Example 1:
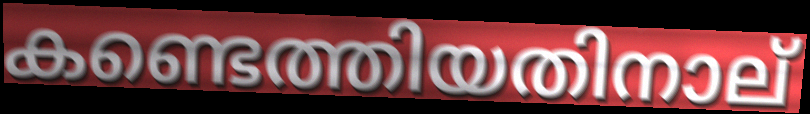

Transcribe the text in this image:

കണ്ടെത്തിയതിനാല്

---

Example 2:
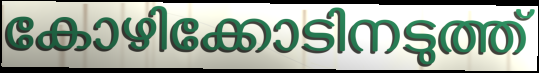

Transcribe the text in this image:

കോഴിക്കോടിനടുത്ത്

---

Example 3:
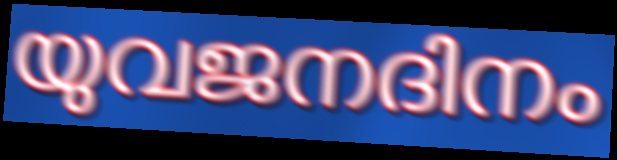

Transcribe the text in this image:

യുവജനദിനം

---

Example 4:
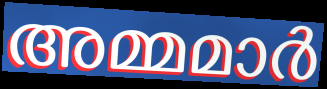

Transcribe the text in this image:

അമ്മമാർ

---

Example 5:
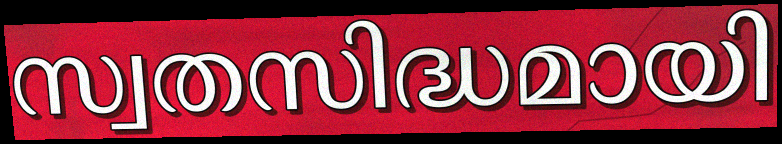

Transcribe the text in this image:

സ്വതസിദ്ധമായി